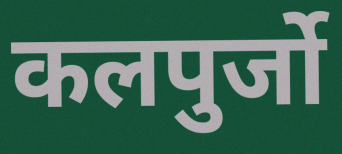
कलपुर्जो